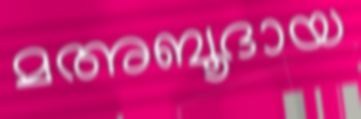
മഅബൂദായ